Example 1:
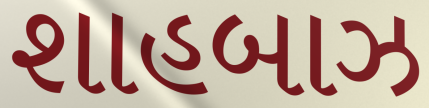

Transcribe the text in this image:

શાહબાઝ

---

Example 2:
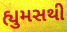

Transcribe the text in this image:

હ્યુમસથી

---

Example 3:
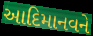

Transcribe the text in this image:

આદિમાનવને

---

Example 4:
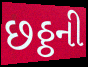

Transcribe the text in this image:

છઠ્ઠની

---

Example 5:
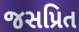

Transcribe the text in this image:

જસપ્રિત